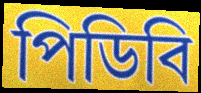
পিডিবি